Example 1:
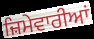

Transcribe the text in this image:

ਜ਼ਿਮੇਵਾਰੀਆਂ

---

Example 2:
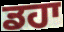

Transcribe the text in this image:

ਡਹਾ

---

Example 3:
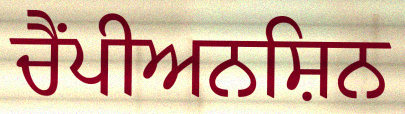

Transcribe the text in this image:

ਚੈਂਪੀਅਨਸ਼ਿਨ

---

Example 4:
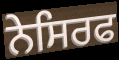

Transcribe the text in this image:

ਨੇਸਿਰਫ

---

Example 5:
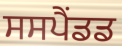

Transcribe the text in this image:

ਸਸਪੈਂਡਡ